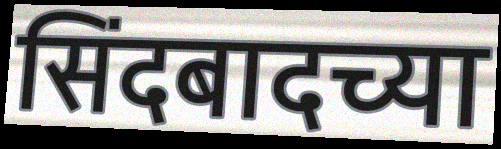
सिंदबादच्या